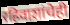
रहिवाशांचेही